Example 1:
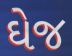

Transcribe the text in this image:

ઘેજ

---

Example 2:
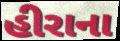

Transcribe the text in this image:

હીરાના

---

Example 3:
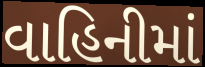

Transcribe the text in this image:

વાહિનીમાં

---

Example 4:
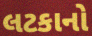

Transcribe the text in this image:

લટકાનો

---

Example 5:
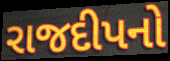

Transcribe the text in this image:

રાજદીપનો